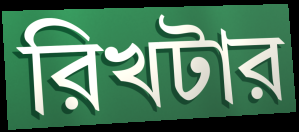
রিখটার